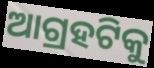
ଆଗ୍ରହଟିକୁ